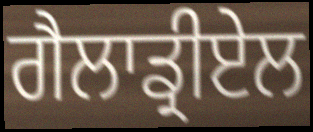
ਗੈਲਾਡ੍ਰੀਏਲ